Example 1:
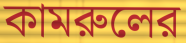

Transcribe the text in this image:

কামরুলের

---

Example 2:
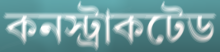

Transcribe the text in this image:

কনস্ট্রাকটেড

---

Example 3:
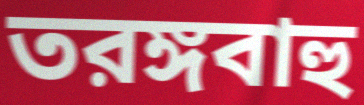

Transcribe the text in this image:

তরঙ্গবাহু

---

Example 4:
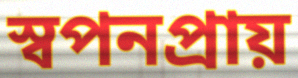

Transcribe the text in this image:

স্বপনপ্রায়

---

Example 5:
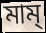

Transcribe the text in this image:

মাম্